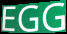
EGG